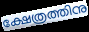
ക്ഷേത്രത്തിനു